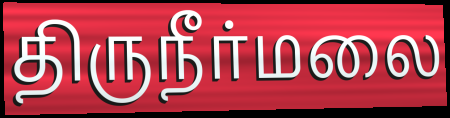
திருநீர்மலை